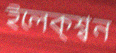
ইলেক্‌শ্বন